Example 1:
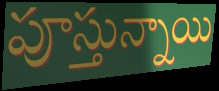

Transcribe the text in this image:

పూస్తున్నాయి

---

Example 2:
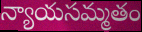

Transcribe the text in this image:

న్యాయసమ్మతం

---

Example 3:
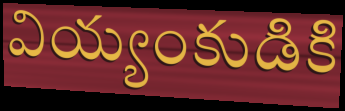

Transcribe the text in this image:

వియ్యంకుడికి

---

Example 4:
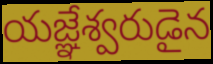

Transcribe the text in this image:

యజ్ఞేశ్వరుడైన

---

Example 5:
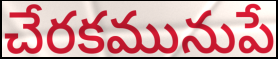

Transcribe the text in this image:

చేరకమునుపే